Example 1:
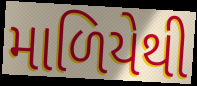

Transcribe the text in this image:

માળિયેથી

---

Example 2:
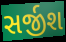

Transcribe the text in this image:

સર્જીશ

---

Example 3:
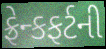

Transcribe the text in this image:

ફ્રેન્કફર્ટની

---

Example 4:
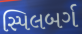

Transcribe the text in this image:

સ્પિલબર્ગ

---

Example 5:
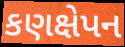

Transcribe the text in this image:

કણક્ષેપન